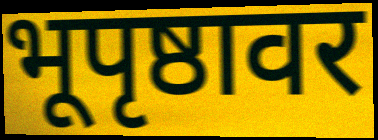
भूपृष्ठावर